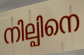
നില്പിനെ